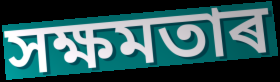
সক্ষমতাৰ